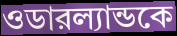
ওডারল্যান্ডকে